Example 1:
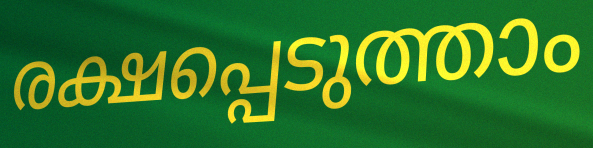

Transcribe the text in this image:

രക്ഷപ്പെടുത്താം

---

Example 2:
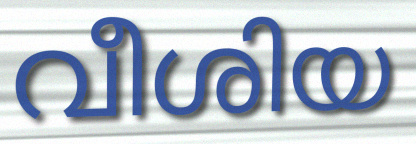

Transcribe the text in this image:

വീശിയ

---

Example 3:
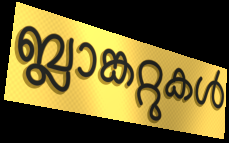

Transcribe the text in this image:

ബ്ലാങ്കറ്റുകൾ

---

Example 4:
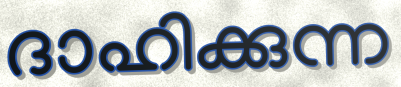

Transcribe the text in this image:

ദാഹിക്കുന്ന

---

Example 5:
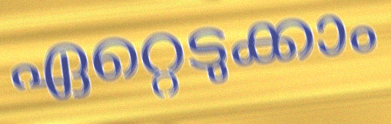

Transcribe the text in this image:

ഏറ്റെടുക്കാം